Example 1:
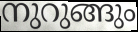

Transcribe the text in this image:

നുറുങ്ങും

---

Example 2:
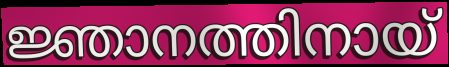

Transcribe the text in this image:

ജ്ഞാനത്തിനായ്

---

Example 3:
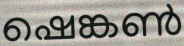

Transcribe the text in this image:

ഷെങ്കൺ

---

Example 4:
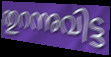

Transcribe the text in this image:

തുറന്നുവിട്ട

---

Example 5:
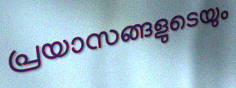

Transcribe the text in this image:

പ്രയാസങ്ങളുടെയും